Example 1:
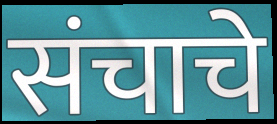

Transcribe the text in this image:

संचाचे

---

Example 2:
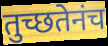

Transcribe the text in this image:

तुच्छतेनंच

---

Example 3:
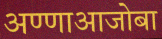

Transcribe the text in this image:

अण्णाआजोबा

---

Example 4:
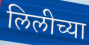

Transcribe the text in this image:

लिलीच्या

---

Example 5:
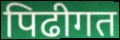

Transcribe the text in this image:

पिढीगत